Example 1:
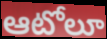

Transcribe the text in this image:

ఆటోలూ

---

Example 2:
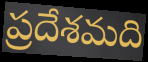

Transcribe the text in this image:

ప్రదేశమది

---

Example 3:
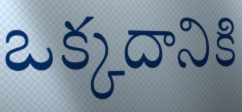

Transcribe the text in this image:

ఒక్కదానికి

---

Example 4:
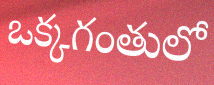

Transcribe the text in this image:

ఒక్కగంతులో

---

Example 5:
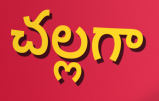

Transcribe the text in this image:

చల్లగా